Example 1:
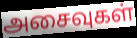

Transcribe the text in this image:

அசைவுகள்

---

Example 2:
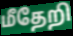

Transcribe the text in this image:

மீதேறி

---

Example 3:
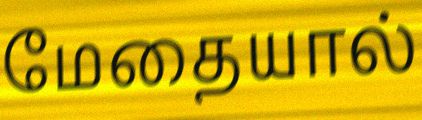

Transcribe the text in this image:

மேதையால்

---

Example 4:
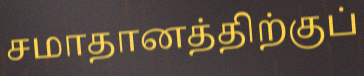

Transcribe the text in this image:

சமாதானத்திற்குப்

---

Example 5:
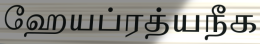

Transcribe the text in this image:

ஹேயப்ரத்யநீக